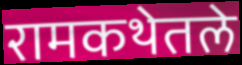
रामकथेतले